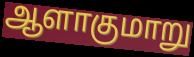
ஆளாகுமாறு